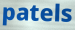
patels